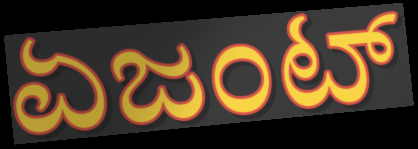
ಏಜಂಟ್